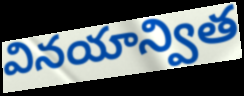
వినయాన్విత